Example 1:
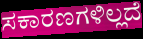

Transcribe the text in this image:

ಸಕಾರಣಗಳಿಲ್ಲದೆ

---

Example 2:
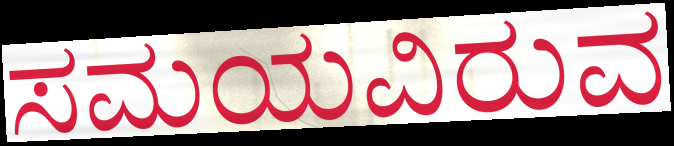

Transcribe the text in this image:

ಸಮಯವಿರುವ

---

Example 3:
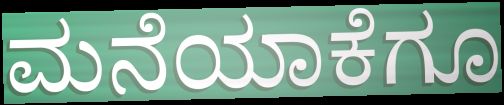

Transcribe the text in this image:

ಮನೆಯಾಕೆಗೂ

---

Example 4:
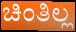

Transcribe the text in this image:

ಚಿಂತಿಲ್ಲ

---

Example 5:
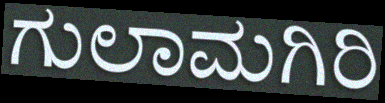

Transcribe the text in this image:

ಗುಲಾಮಗಿರಿ